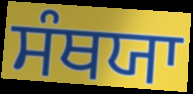
ਸੰਥਯਾ